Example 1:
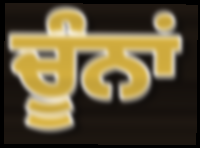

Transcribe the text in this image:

ਚੂੰਨਾਂ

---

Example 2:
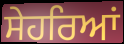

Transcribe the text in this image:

ਸੇਹਰਿਆਂ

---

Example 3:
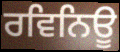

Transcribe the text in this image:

ਰਵਿਨਿਊ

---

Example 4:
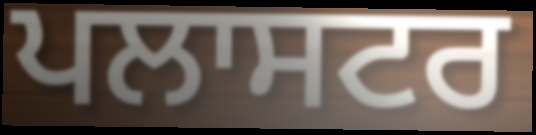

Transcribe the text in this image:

ਪਲਾਸਟਰ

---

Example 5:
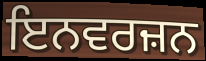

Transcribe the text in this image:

ਇਨਵਰਜ਼ਨ